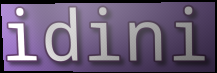
idini